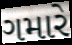
ગમારે